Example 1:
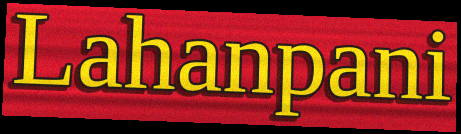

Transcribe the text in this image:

Lahanpani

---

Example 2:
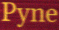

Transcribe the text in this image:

Pyne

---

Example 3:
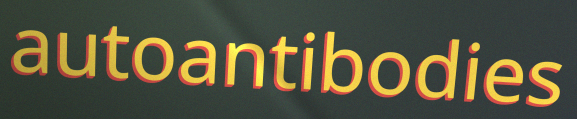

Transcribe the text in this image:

autoantibodies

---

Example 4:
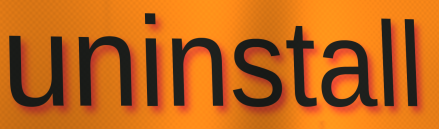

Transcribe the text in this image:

uninstall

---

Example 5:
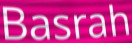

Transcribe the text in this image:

Basrah